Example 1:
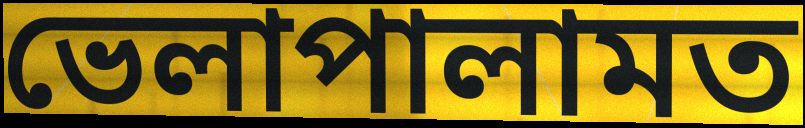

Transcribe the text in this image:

ভেলাপালামত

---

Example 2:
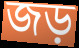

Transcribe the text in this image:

জড়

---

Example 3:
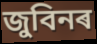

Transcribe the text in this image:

জুবিনৰ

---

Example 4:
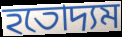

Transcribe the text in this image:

হতোদ্যম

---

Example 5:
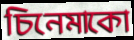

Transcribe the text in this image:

চিনেমাকো